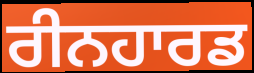
ਰੀਨਹਾਰਡ